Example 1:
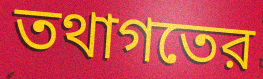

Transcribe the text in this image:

তথাগতের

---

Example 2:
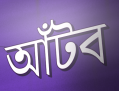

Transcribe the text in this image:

আঁটব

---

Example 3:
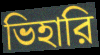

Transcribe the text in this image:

ভিহারি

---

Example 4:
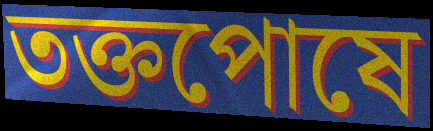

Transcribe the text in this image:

তক্তপোষে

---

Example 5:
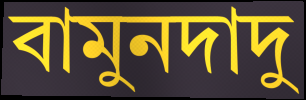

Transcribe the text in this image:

বামুনদাদু